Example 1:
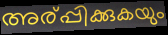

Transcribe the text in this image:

അര്പ്പിക്കുകയും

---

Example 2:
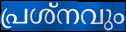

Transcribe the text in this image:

പ്രശ്നവും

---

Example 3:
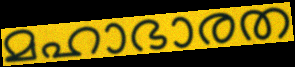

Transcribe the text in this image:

മഹാഭാരത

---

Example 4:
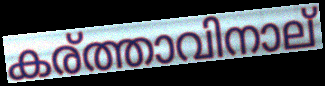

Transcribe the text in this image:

കര്ത്താവിനാല്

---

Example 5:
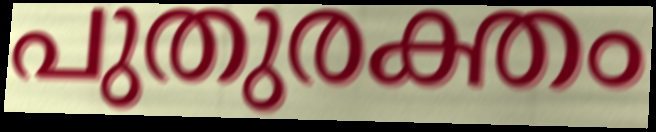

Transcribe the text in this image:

പുതുരക്തം